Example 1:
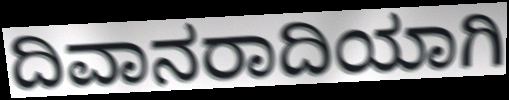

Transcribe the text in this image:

ದಿವಾನರಾದಿಯಾಗಿ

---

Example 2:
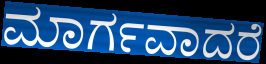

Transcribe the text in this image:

ಮಾರ್ಗವಾದರೆ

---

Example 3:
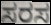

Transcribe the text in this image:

ಸರಸ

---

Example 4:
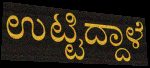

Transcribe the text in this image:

ಉಟ್ಟಿದ್ದಾಳೆ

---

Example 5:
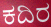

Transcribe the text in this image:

ಕದಿರ